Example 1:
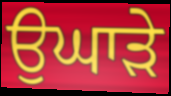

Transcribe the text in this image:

ਉਘਾੜੇ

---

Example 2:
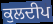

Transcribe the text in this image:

ਕੁਲਦੀਪ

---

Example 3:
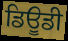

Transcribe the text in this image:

ਡਿਊਡੀ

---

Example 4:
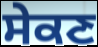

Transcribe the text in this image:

ਸੇਕਣ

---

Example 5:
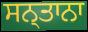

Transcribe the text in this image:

ਸਨ੍ਤਾਨਾ